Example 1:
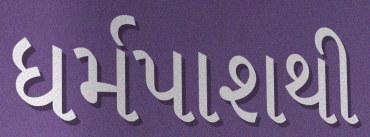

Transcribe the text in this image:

ધર્મપાશથી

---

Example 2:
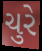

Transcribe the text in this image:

ચુરે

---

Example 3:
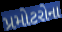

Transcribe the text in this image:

પ્રમોટરોના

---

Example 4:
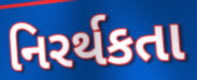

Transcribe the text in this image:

નિરર્થકતા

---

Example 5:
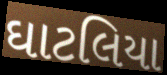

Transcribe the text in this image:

ઘાટલિયા